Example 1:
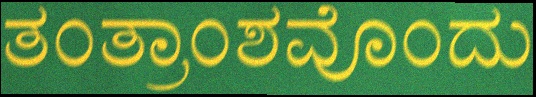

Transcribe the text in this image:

ತಂತ್ರಾಂಶವೊಂದು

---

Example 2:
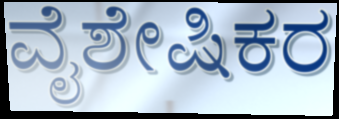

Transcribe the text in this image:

ವೈಶೇಷಿಕರ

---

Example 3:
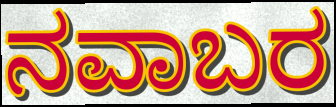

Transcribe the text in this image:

ನವಾಬರ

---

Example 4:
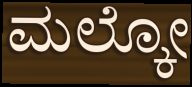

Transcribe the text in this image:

ಮಲ್ಕೋ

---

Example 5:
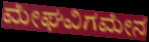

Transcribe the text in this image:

ಮೇಘವಿಗಮೇನ